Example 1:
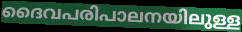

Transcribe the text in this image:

ദൈവപരിപാലനയിലുള്ള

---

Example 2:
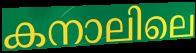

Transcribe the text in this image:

കനാലിലെ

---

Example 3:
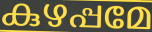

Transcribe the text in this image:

കുഴപ്പമേ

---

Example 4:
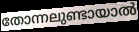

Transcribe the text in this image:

തോന്നലുണ്ടായാൽ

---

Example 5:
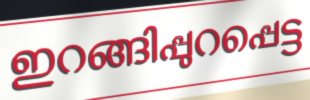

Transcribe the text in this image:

ഇറങ്ങിപ്പുറപ്പെട്ട